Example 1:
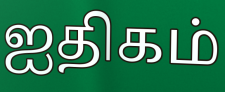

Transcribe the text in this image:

ஐதிகம்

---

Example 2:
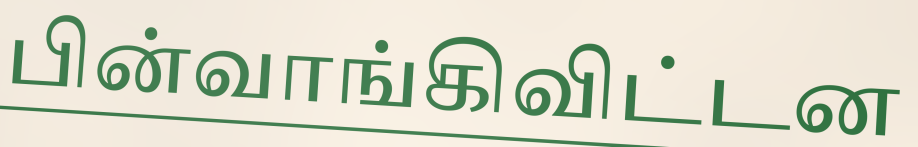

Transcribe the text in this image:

பின்வாங்கிவிட்டன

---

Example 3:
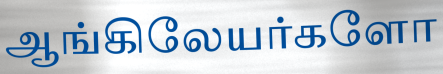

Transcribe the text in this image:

ஆங்கிலேயர்களோ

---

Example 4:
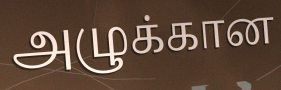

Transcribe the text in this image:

அழுக்கான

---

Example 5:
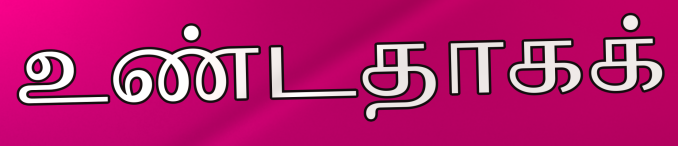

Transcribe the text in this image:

உண்டதாகக்